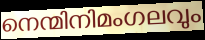
നെന്മിനിമംഗലവും